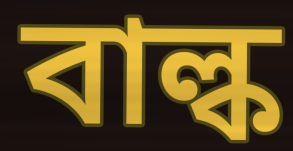
বাল্ক